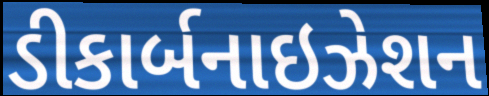
ડીકાર્બનાઇઝેશન